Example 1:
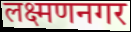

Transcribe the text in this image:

लक्ष्मणनगर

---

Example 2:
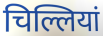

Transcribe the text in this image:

चिल्लियां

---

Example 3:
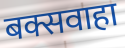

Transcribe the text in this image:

बक्सवाहा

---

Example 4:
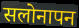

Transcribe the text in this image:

सलोनापन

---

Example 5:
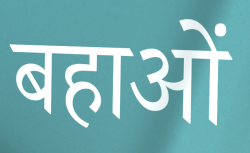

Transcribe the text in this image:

बहाओं